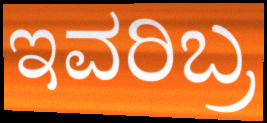
ಇವರಿಬ್ರ